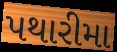
પથારીમા